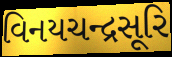
વિનયચન્દ્રસૂરિ